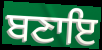
ਬਣਾਇ